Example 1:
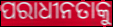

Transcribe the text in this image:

ପରାଧୀନତାକୁ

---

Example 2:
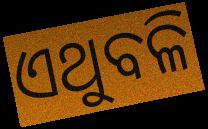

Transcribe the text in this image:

ଏଥୁବଳି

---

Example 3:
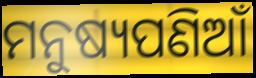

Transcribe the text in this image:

ମନୁଷ୍ୟପଣିଆଁ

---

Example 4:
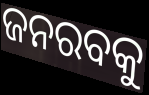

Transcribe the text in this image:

ଜନରବକୁ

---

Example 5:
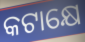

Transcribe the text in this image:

କଟାକ୍ଷେ